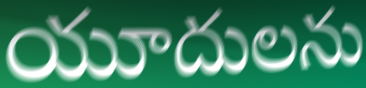
యూదులను